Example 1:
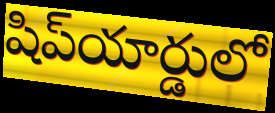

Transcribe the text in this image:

షిప్‌యార్డులో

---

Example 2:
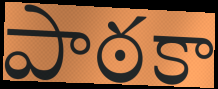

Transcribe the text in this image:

పాఠకా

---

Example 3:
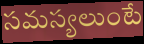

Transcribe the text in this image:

సమస్యలుంటే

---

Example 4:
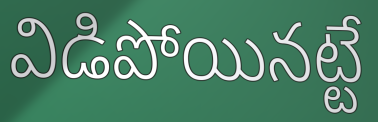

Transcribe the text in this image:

విడిపోయినట్టే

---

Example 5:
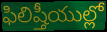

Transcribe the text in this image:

ఫిలిష్తీయుల్లో